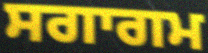
ਸਗਾਗਮ